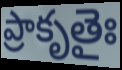
ప్రాకృతైః